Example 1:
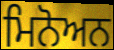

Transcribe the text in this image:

ਮਿਨੋਅਨ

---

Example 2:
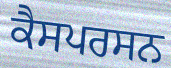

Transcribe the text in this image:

ਕੈਸਪਰਸਨ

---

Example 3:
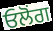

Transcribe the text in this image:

ਓਲੋਂਗ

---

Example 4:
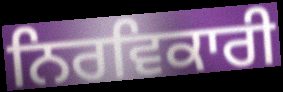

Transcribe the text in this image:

ਨਿਰਵਿਕਾਰੀ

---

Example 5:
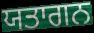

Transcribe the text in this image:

ਯਤਾਗਨ